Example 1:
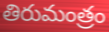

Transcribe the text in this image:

తిరుమంత్రం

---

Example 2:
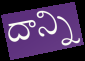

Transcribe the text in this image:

దాన్ని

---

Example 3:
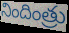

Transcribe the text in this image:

నిందింత్రు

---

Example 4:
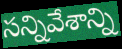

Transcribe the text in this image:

సన్నివేశాన్ని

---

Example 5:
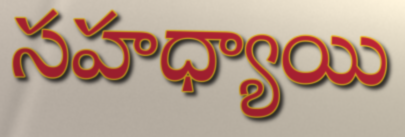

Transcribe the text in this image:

సహధ్యాయి